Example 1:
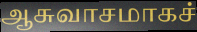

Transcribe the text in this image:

ஆசுவாசமாகச்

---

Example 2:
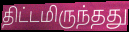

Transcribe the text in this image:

திட்டமிருந்தது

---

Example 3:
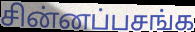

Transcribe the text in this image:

சின்னப்பசங்க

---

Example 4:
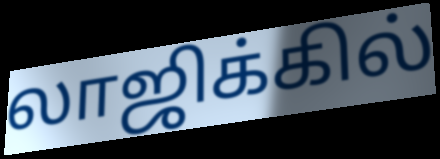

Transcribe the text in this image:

லாஜிக்கில்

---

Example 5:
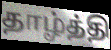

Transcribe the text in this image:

தாழ்த்தி